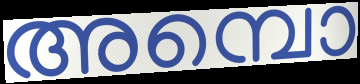
അമ്പൊ